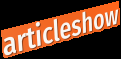
articleshow